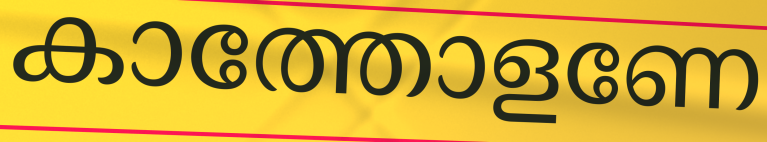
കാത്തോളണേ